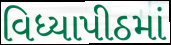
વિધ્યાપીઠમાં